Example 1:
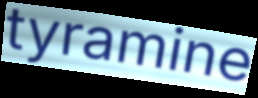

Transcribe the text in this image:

tyramine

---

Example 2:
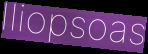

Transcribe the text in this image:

Iliopsoas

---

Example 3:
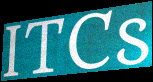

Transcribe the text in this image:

ITCs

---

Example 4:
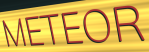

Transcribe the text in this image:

METEOR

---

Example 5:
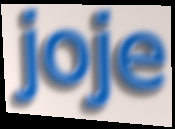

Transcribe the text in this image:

joje